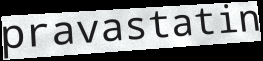
pravastatin